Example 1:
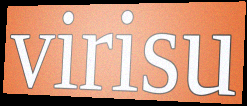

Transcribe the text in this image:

virisu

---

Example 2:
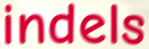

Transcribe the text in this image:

indels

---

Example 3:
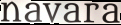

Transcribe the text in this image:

navara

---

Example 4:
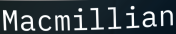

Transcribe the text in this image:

Macmillian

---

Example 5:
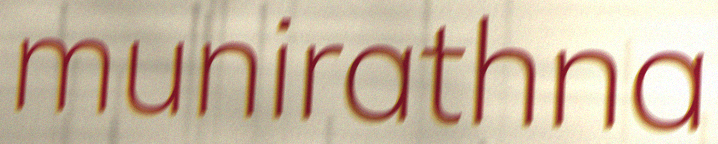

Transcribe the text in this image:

munirathna